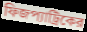
ফিজপ্যাট্রিকের